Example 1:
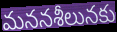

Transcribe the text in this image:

మననశీలునకు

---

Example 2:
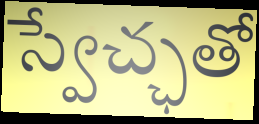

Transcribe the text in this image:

స్వేచ్ఛతో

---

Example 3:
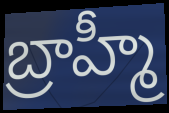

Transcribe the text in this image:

బ్రాహ్మీ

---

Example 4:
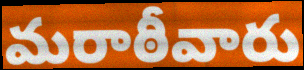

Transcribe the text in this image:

మరాఠీవారు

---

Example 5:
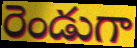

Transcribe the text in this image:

రెండుగా